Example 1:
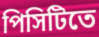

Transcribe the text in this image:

পিসিটিতে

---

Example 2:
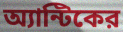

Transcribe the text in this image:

অ্যান্টিকের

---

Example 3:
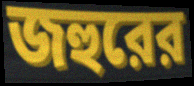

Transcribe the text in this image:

জহুরের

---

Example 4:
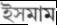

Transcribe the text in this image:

ইসমাম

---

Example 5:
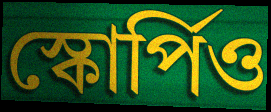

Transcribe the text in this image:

স্কোর্পিও